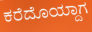
ಕರೆದೊಯ್ದಾಗ